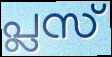
പ്ലസ്